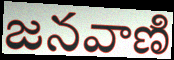
జనవాణి